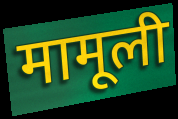
मामूली